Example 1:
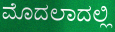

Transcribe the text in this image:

ಮೊದಲಾದಲ್ಲಿ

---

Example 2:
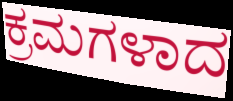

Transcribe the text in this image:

ಕ್ರಮಗಳಾದ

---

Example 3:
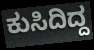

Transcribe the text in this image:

ಕುಸಿದಿದ್ದ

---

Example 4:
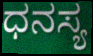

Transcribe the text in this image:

ಧನಸ್ಯ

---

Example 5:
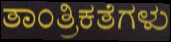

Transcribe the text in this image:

ತಾಂತ್ರಿಕತೆಗಳು